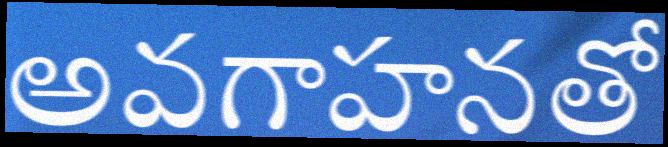
అవగాహనతో